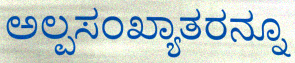
ಅಲ್ಪಸಂಖ್ಯಾತರನ್ನೂ